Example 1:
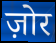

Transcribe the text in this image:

ज़ोर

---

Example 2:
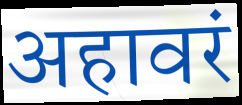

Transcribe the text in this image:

अहावरं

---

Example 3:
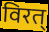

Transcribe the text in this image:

विरत्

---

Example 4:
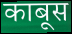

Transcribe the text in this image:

काबूस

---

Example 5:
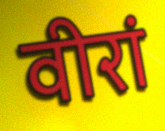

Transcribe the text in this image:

वीरां